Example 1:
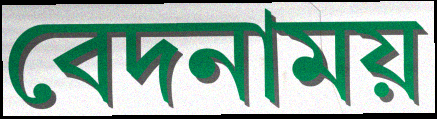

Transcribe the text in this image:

বেদনাময়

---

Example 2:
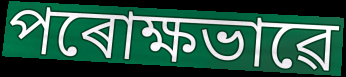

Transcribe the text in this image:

পৰোক্ষভাৱে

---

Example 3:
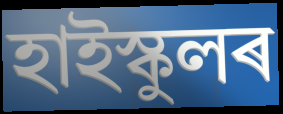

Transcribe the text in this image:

হাইস্কুলৰ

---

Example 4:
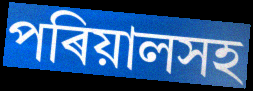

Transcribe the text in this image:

পৰিয়ালসহ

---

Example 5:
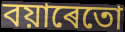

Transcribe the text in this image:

বয়াৰেতো